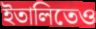
ইতালিতেও